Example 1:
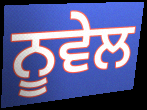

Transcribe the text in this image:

ਨੂਵੇਲ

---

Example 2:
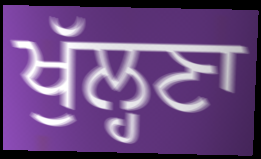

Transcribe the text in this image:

ਖੁੱਲ੍ਹਣਾ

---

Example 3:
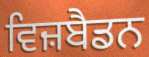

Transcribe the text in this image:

ਵਿਜ਼ਬੈਡਨ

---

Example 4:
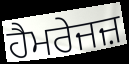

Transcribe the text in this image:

ਹੈਮਰੇਜਜ਼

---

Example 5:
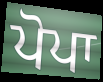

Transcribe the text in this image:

ਪੋਪਾ